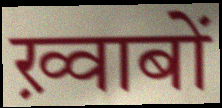
ख़्वाबों